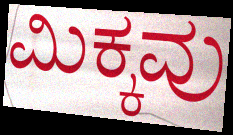
ಮಿಕ್ಕವು